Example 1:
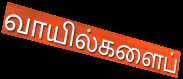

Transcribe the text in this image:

வாயில்களைப்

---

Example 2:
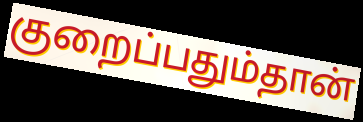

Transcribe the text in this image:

குறைப்பதும்தான்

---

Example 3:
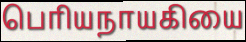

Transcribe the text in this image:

பெரியநாயகியை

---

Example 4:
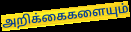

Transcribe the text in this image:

அறிக்கைகளையும்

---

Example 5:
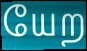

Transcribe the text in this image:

யேற